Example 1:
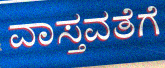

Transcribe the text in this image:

ವಾಸ್ತವತೆಗೆ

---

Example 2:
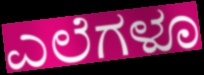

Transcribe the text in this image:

ಎಲೆಗಳೂ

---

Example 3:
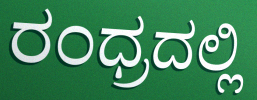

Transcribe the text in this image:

ರಂಧ್ರದಲ್ಲಿ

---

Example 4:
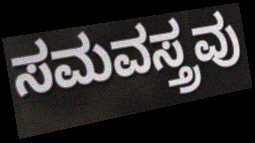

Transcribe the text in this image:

ಸಮವಸ್ತ್ರವು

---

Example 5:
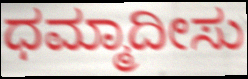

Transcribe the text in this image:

ಧಮ್ಮಾದೀಸು